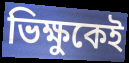
ভিক্ষুকেই